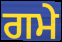
ਗਮੇ